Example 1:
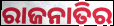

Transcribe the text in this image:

ରାଜନାତିର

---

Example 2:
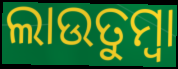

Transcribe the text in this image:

ଲାଉତୁମ୍ବା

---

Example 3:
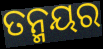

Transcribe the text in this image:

ତନ୍ମୟର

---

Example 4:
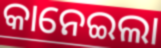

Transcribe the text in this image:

କାନେଇଲା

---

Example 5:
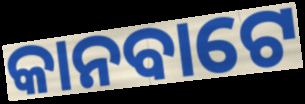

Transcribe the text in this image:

କାନବାଟେ